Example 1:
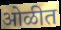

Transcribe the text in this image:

ओळीत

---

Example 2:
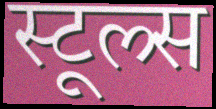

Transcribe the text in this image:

स्टूल्स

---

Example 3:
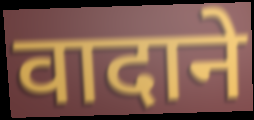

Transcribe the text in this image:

वादाने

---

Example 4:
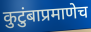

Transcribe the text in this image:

कुटुंबाप्रमाणेच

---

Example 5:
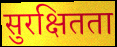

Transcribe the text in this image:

सुरक्षितता